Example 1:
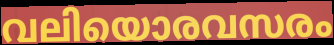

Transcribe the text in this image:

വലിയൊരവസരം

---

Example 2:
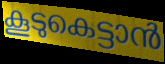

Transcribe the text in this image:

കൂടുകെട്ടാൻ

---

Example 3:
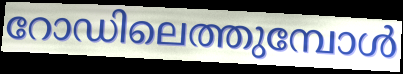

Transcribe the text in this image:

റോഡിലെത്തുമ്പോൾ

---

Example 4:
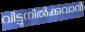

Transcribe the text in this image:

വിട്ടുനിൽക്കുവാൻ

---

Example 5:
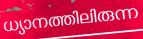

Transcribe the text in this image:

ധ്യാനത്തിലിരുന്ന